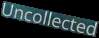
Uncollected